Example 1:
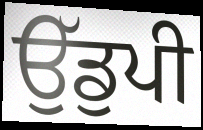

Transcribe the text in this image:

ਉੱਡੁਪੀ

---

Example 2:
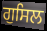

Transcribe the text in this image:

ਗੁਸਿਲ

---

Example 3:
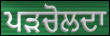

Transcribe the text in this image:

ਪੜਚੋਲਦਾ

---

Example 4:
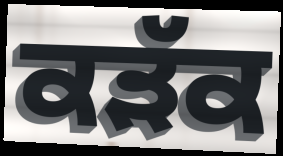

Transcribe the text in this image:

ਕੜੱਕ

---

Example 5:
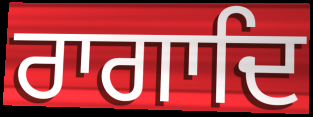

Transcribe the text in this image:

ਰਾਗਾਦਿ